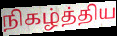
நிகழ்த்திய